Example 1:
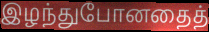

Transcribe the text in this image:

இழந்துபோனதைத்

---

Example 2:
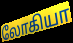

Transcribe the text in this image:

லோகியா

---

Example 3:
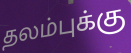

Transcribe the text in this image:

தலம்புக்கு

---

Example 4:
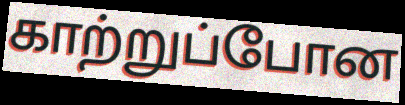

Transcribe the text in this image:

காற்றுப்போன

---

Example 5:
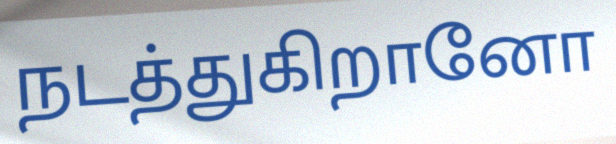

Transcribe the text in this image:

நடத்துகிறானோ